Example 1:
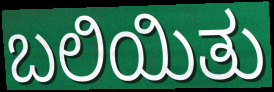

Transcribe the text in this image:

ಬಲಿಯಿತು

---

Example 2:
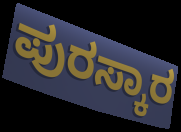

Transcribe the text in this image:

ಪುರಸ್ಕಾರ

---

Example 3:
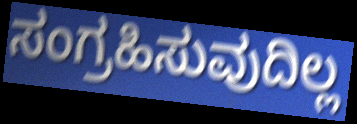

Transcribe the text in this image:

ಸಂಗ್ರಹಿಸುವುದಿಲ್ಲ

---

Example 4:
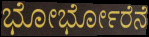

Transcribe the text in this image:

ಭೋರ್ಭೋರೆನೆ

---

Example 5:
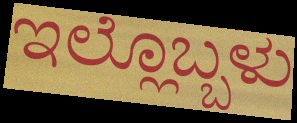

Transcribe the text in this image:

ಇಲ್ಲೊಬ್ಬಳು